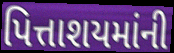
પિત્તાશયમાંની